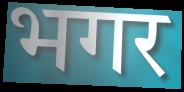
भगर